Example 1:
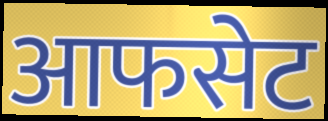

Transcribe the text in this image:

आफसेट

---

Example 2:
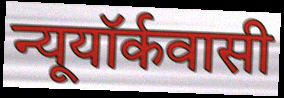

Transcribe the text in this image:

न्यूयॉर्कवासी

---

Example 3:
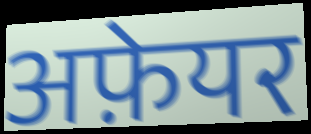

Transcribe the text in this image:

अफ़ेयर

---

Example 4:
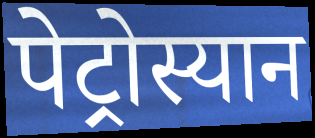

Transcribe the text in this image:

पेट्रोस्यान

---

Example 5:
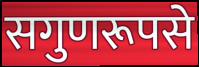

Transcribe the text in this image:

सगुणरूपसे